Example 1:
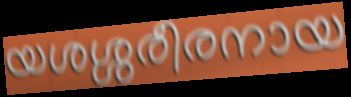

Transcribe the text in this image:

യശശ്ശരീരനായ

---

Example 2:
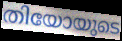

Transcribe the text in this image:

തിയോയുടെ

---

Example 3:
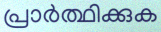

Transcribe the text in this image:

പ്രാർത്ഥിക്കുക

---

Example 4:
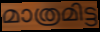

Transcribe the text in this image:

മാത്രമിട്ട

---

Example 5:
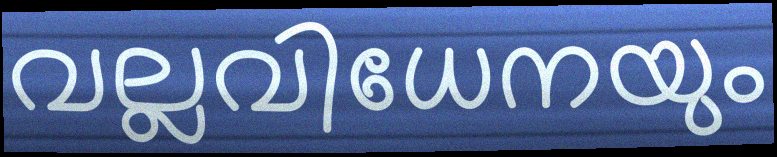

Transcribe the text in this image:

വല്ലവിധേനയും